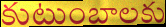
కుటుంబాలకు